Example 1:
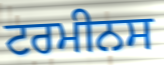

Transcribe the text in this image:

ਟਰਮੀਨਸ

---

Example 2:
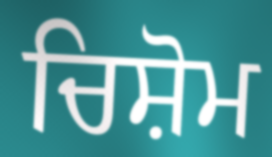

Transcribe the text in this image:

ਚਿਸ਼ੋਮ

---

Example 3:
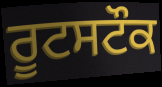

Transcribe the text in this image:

ਰੂਟਸਟੌਕ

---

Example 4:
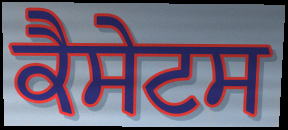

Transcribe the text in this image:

ਕੈਸੇਟਸ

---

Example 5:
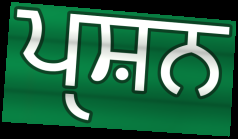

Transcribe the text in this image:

ਪੑਸ਼ਨ